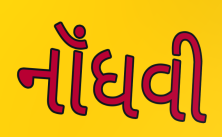
નૉંધવી